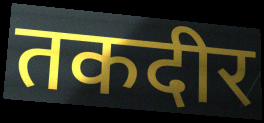
तकदीर